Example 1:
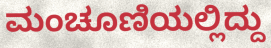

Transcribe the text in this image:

ಮಂಚೂಣಿಯಲ್ಲಿದ್ದು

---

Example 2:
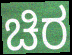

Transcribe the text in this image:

ಚಿರ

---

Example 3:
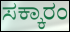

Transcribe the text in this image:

ಸಕ್ಕಾರಂ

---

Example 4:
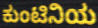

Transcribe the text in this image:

ಕುಂಟಿನಿಯ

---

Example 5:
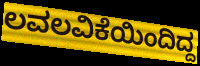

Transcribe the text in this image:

ಲವಲವಿಕೆಯಿಂದಿದ್ದ